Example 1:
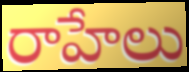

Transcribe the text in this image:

రాహేలు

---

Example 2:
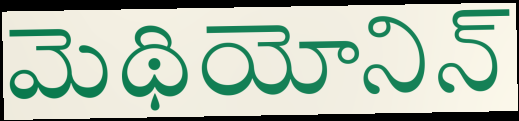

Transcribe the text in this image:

మెథియోనిన్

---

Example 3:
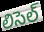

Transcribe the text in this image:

లిసెల్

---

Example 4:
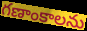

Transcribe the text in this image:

గణాంకాలను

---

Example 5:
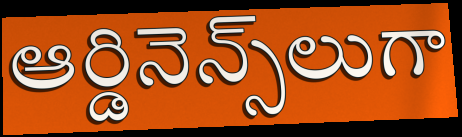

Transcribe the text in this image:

ఆర్డినెన్స్‌లుగా